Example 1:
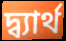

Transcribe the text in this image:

দ্ব্যার্থ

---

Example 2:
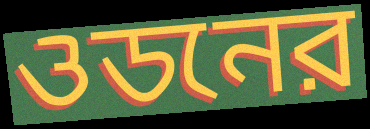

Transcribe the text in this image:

ওডনের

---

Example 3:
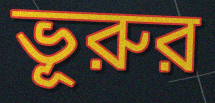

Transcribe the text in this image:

ভূরুর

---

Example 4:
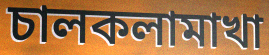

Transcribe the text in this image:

চালকলামাখা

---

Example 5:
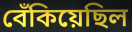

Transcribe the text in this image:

বেঁকিয়েছিল